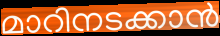
മാറിനടക്കാൻ